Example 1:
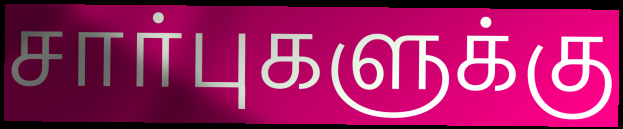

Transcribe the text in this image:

சார்புகளுக்கு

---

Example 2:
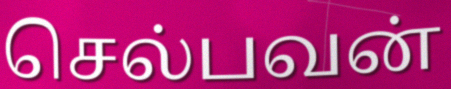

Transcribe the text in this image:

செல்பவன்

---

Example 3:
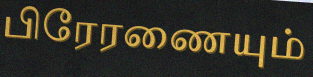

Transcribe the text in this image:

பிரேரணையும்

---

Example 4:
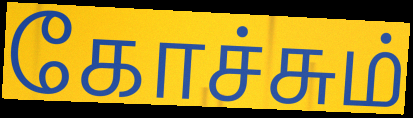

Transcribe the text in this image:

கோச்சும்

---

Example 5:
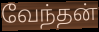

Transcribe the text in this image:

வேந்தன்